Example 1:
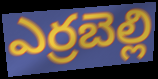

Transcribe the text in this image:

ఎర్రబెల్లి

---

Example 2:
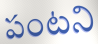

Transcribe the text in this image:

పంటని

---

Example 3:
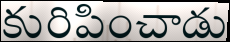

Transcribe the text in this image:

కురిపించాడు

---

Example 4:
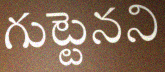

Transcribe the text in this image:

గుట్టెనని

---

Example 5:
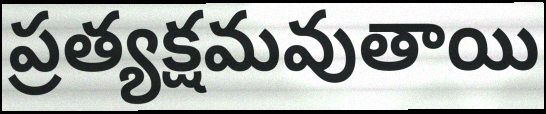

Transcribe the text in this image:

ప్రత్యక్షమవుతాయి